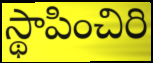
స్థాపించిరి